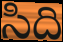
సిది